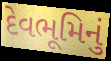
દેવભૂમિનું